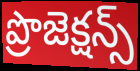
ప్రొజెక్షన్స్